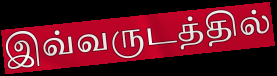
இவ்வருடத்தில்